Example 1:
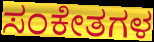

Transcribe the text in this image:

ಸಂಕೇತಗಳ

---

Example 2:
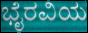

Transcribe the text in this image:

ಭೈರವಿಯ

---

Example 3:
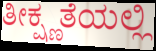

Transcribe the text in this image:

ತೀಕ್ಷ್ಣತೆಯಲ್ಲಿ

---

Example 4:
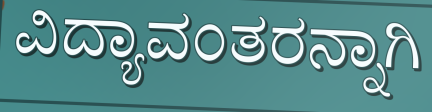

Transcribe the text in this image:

ವಿದ್ಯಾವಂತರನ್ನಾಗಿ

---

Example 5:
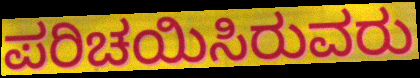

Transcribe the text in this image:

ಪರಿಚಯಿಸಿರುವರು